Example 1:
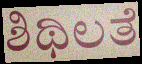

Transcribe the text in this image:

ಶಿಥಿಲತೆ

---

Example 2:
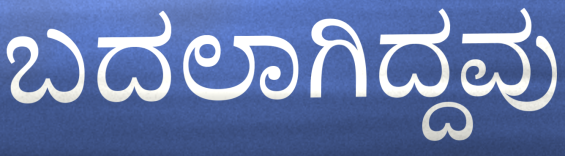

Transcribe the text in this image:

ಬದಲಾಗಿದ್ದವು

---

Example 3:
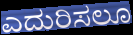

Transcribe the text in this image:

ಎದುರಿಸಲೂ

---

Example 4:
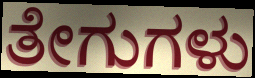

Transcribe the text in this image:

ತೇಗುಗಳು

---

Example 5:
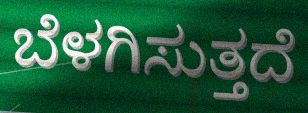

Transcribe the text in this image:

ಬೆಳಗಿಸುತ್ತದೆ